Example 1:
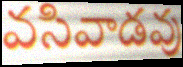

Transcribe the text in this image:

వసివాడవు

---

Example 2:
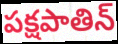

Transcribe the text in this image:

పక్షపాతిన్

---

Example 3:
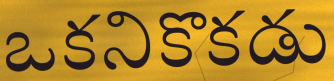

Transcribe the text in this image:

ఒకనికొకడు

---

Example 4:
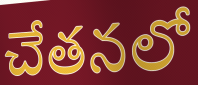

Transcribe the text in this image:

చేతనలో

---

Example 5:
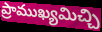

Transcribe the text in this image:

ప్రాముఖ్యమిచ్చి